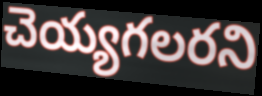
చెయ్యగలరని